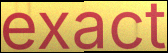
exact